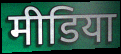
मीडिया